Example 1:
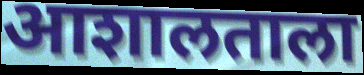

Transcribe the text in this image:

आशालताला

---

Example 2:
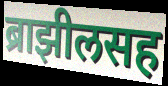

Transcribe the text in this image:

ब्राझीलसह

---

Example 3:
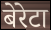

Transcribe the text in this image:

बेरेटा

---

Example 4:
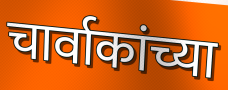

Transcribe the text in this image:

चार्वाकांच्या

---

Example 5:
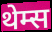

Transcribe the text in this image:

थेम्स